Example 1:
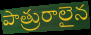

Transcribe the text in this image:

పాత్రురాలైన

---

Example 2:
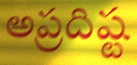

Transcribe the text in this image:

అప్రదిష్ట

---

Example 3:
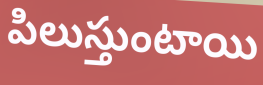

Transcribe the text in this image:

పిలుస్తుంటాయి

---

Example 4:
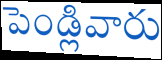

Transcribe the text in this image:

పెండ్లివారు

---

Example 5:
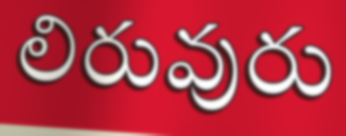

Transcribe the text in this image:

లిరువురు